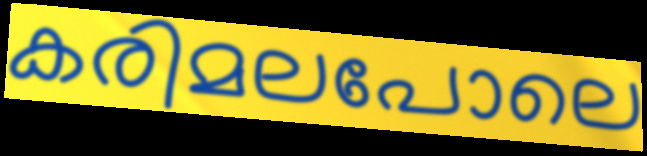
കരിമലപോലെ